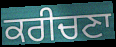
ਕਰੀਚਣਾ